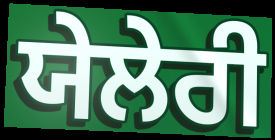
ਯੇਲੇਰੀ